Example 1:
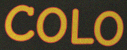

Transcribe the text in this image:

COLO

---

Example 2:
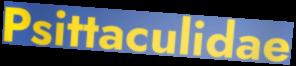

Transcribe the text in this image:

Psittaculidae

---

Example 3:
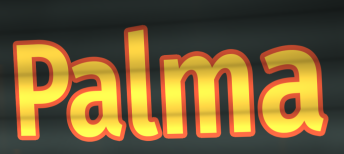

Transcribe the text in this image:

Palma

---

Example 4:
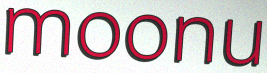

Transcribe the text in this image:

moonu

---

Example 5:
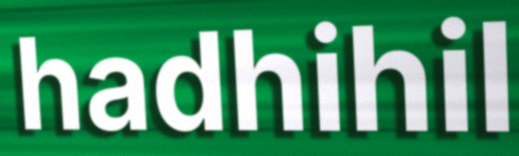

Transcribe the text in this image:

hadhihil